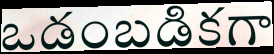
ఒడంబడికగా